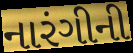
નારંગીની